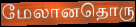
மேலானதொரு